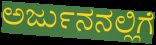
ಅರ್ಜುನನಲ್ಲಿಗೆ